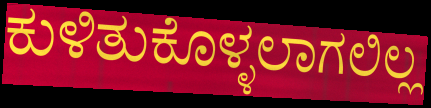
ಕುಳಿತುಕೊಳ್ಳಲಾಗಲಿಲ್ಲ